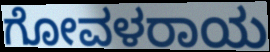
ಗೋವಳರಾಯ